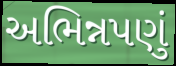
અભિન્નપણું